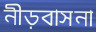
নীড়বাসনা